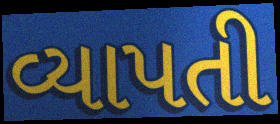
વ્યાપતી